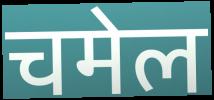
चमेल